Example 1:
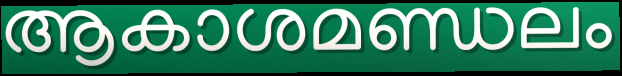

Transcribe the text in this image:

ആകാശമണ്ഡലം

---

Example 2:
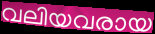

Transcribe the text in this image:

വലിയവരായ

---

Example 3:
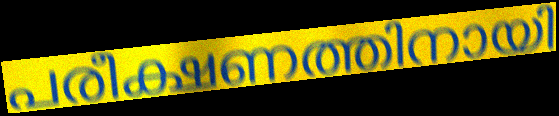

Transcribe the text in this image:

പരീക്ഷണത്തിനായി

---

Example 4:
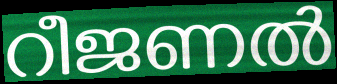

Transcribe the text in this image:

റീജണൽ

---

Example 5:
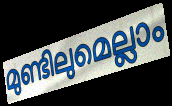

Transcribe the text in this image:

മുണ്ടിലുമെല്ലാം